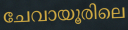
ചേവായൂരിലെ